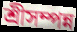
শ্রীসম্পন্ন